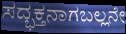
ಸದ್ಭಕ್ತನಾಗಬಲ್ಲನೇ